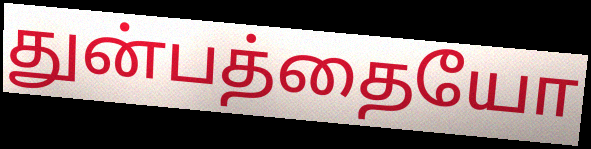
துன்பத்தையோ